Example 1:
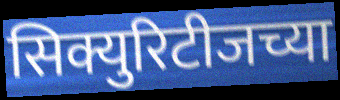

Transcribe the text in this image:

सिक्युरिटीजच्या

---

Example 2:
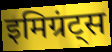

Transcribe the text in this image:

इमिग्रंट्स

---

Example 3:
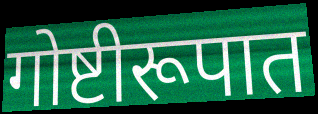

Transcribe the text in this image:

गोष्टीरूपात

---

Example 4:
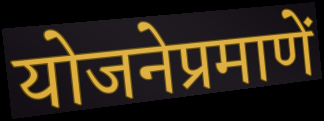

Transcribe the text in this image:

योजनेप्रमाणें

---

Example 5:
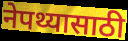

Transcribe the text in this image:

नेपथ्यासाठी